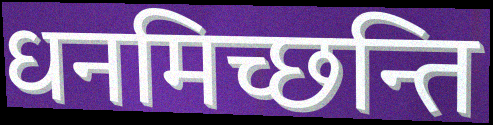
धनमिच्छन्ति